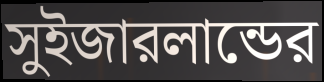
সুইজারলান্ডের